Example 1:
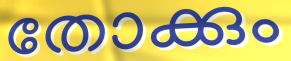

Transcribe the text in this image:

തോക്കും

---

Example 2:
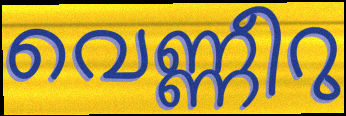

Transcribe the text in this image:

വെണ്ണീറു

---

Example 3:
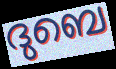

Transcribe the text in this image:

ദുബെ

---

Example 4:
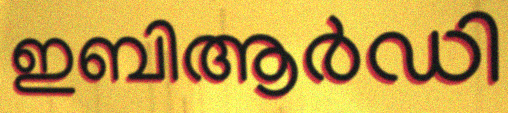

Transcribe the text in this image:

ഇബിആർഡി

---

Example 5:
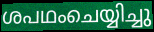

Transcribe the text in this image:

ശപഥംചെയ്യിച്ചു